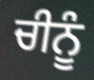
ਚੀਨੂੰ